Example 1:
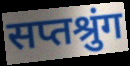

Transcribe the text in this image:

सप्तश्रुंग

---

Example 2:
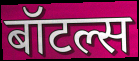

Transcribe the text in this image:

बॉटल्स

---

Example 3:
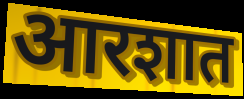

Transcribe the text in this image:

आरशात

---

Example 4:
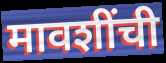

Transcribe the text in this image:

मावशींची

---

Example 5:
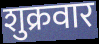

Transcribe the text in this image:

शुक्रवार